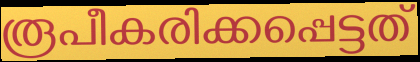
രൂപീകരിക്കപ്പെട്ടത്